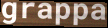
grappa